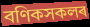
বণিকসকলৰ